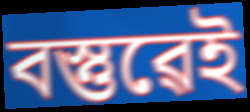
বস্তুৱেই